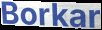
Borkar